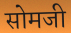
सोमजी